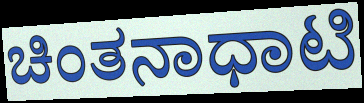
ಚಿಂತನಾಧಾಟಿ